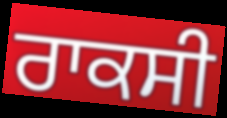
ਰਾਕਸੀ